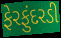
ફેરફુંદરડી